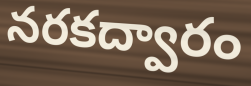
నరకద్వారం